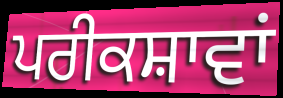
ਪਰੀਕਸ਼ਾਵਾਂ